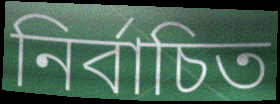
নিৰ্বাচিত